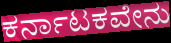
ಕರ್ನಾಟಕವೇನು